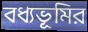
বধ্যভূমির